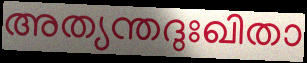
അത്യന്തദുഃഖിതാ